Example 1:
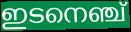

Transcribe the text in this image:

ഇടനെഞ്ച്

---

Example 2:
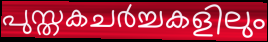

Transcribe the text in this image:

പുസ്തകചർച്ചകളിലും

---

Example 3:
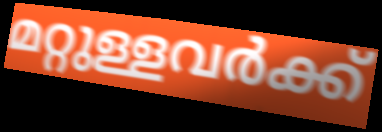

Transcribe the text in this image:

മറ്റുള്ളവർക്ക്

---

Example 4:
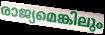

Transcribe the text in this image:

രാജ്യമെങ്കിലും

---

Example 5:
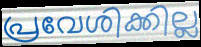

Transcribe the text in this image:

പ്രവേശിക്കില്ല